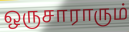
ஒருசாராரும்